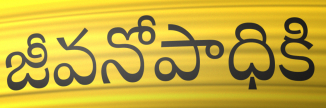
జీవనోపాధికి